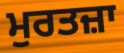
ਮੁਰਤਜ਼ਾ